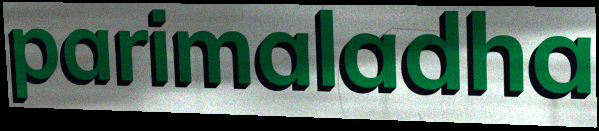
parimaladha